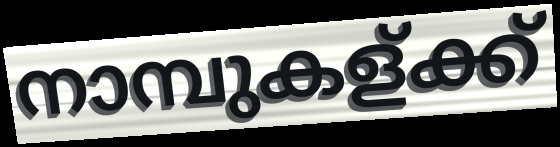
നാമ്പുകള്ക്ക്